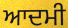
ਆਦਮੀ